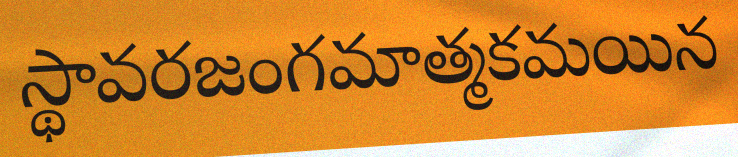
స్థావరజంగమాత్మకమయిన